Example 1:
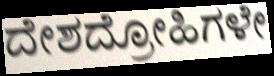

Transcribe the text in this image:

ದೇಶದ್ರೋಹಿಗಳೇ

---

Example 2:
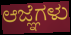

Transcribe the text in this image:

ಆಜ್ಞೆಗಳು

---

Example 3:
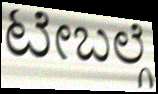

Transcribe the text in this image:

ಟೇಬಲ್ಗೆ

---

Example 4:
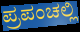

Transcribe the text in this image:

ಪ್ರಪಂಚಲ್ಲಿ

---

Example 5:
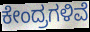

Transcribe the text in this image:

ಕೇಂದ್ರಗಳಿವೆ